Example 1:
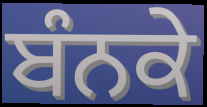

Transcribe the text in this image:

ਬੰਨਕੇ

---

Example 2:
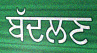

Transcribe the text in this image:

ਬੱਦਲਣ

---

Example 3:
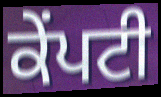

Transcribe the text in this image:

ਕੇਂਪਟੀ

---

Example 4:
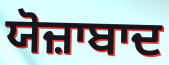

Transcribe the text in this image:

ਯੋਜ਼ਾਬਾਦ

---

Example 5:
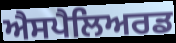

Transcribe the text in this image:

ਐਸਪੈਲਿਅਰਡ